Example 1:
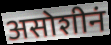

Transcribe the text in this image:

असोशीनं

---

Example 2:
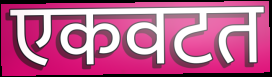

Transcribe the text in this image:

एकवटत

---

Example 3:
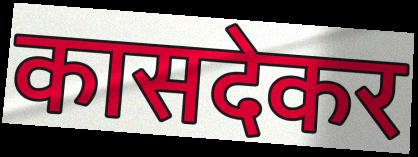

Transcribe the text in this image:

कासदेकर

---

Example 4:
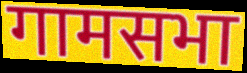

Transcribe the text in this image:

गामसभा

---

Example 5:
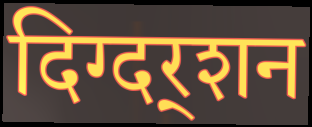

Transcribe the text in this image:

दिग्दर्शन